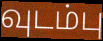
வுடம்பு